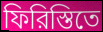
ফিরিস্তিতে